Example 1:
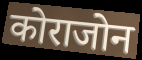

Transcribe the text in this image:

कोराजोन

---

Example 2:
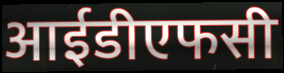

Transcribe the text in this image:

आईडीएफसी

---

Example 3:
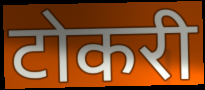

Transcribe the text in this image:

टोकरी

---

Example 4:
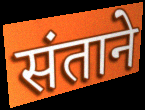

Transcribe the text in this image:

संताने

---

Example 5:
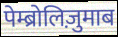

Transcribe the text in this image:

पेम्ब्रोलिज़ुमाब